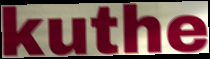
kuthe